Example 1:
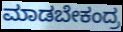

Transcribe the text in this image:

ಮಾಡಬೇಕಂದ್ರ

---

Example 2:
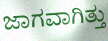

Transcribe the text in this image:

ಜಾಗವಾಗಿತ್ತು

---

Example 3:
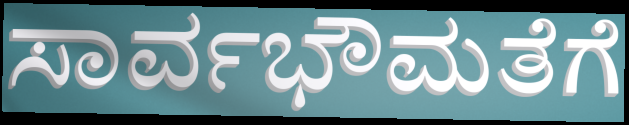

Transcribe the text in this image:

ಸಾರ್ವಭೌಮತೆಗೆ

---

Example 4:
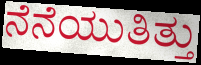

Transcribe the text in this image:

ನೆನೆಯುತಿತ್ತು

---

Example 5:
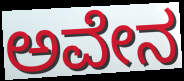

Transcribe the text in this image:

ಅವೇನ